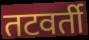
तटवर्ती